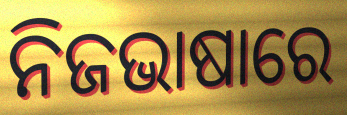
ନିଜଭାଷାରେ